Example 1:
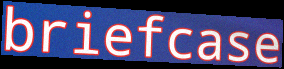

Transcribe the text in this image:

briefcase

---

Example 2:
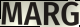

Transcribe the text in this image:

MARG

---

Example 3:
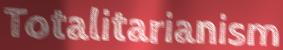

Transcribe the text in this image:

Totalitarianism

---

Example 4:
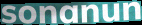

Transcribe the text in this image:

sonanun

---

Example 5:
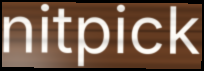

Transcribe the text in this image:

nitpick